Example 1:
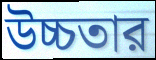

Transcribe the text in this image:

উচ্চতার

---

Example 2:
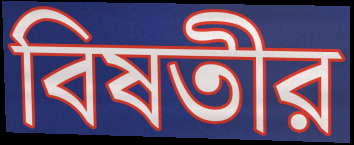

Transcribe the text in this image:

বিষতীর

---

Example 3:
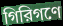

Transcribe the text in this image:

গিরিগণে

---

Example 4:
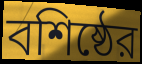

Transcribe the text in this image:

বশিষ্ঠের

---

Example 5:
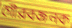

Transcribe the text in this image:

গৌরবজনক